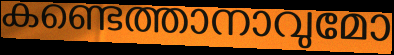
കണ്ടെത്താനാവുമോ